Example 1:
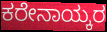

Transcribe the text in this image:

ಕರೇನಾಯ್ಕರ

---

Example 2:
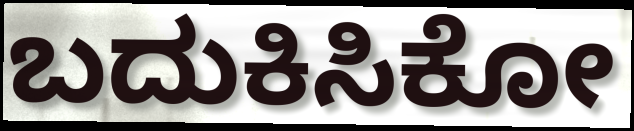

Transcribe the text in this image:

ಬದುಕಿಸಿಕೋ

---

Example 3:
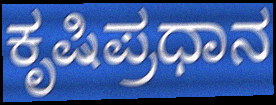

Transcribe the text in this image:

ಕೃಷಿಪ್ರಧಾನ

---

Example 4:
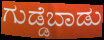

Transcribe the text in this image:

ಗುಡ್ಡೆಬಾಡು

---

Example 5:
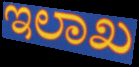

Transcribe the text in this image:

ಇಲಾಖ